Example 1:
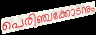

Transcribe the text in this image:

പെരിഞ്ചക്കോടനും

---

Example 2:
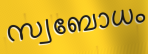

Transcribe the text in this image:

സ്വബോധം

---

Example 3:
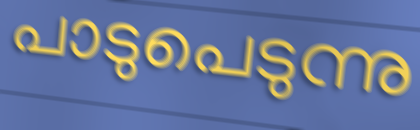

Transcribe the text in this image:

പാടുപെടുന്നു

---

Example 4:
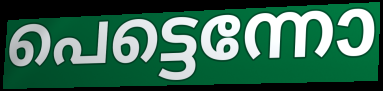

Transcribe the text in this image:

പെട്ടെന്നോ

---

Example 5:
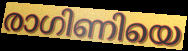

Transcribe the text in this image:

രാഗിണിയെ